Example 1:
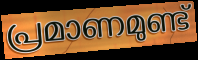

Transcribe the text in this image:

പ്രമാണമുണ്ട്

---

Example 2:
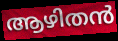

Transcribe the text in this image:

ആഴിതൻ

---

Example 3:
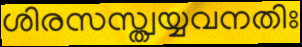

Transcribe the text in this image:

ശിരസസ്ത്വയ്യവനതിഃ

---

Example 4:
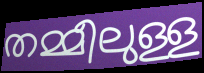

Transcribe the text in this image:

തമ്മീലുള്ള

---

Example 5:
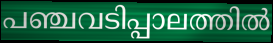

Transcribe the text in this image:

പഞ്ചവടിപ്പാലത്തിൽ